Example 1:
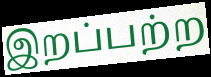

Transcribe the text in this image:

இறப்பற்ற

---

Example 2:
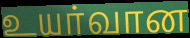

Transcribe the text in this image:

உயர்வான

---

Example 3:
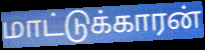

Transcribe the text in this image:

மாட்டுக்காரன்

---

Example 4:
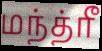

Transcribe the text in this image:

மந்த்ரீ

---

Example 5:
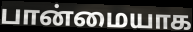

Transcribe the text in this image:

பான்மையாக